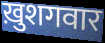
ख़ुशगवार